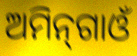
ଅମିନ୍‌ଗାଓଁ